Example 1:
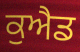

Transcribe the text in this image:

ਕੁਐਡ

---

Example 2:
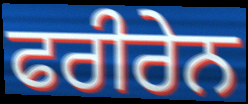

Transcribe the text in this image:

ਫਰੀਰੇਨ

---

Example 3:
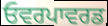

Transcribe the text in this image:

ਓਵਰਪਾਵਰਡ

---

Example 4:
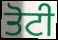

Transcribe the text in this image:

ਤੋਟੀ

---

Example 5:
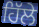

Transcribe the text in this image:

ਹਿੱਲੇ